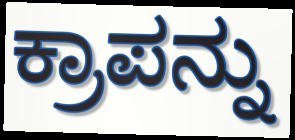
ಕ್ರಾಪನ್ನು